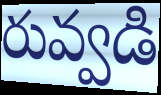
రువ్వడి